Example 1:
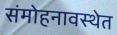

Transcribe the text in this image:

संमोहनावस्थेत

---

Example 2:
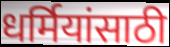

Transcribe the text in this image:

धर्मियांसाठी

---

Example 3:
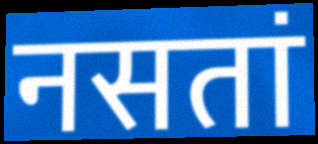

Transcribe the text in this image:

नसतां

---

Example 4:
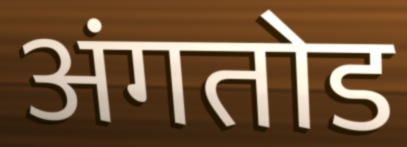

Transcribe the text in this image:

अंगतोड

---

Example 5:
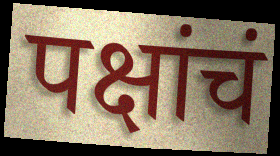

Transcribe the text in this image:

पक्षांचं